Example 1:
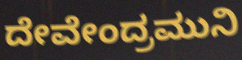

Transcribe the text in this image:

ದೇವೇಂದ್ರಮುನಿ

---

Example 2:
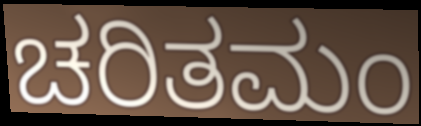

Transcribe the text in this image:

ಚರಿತಮಂ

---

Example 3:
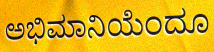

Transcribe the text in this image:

ಅಭಿಮಾನಿಯೆಂದೂ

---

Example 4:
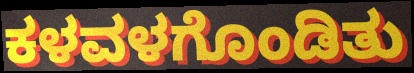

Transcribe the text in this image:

ಕಳವಳಗೊಂಡಿತು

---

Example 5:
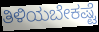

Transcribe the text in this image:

ತಿಳಿಯಬೇಕಷ್ಟೆ